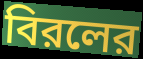
বিরলের